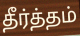
தீர்த்தம்